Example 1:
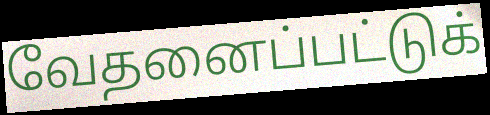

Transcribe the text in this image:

வேதனைப்பட்டுக்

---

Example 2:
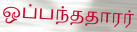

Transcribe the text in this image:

ஒப்பந்ததாரர்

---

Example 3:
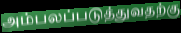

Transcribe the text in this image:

அம்பலப்படுத்துவதற்கு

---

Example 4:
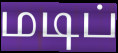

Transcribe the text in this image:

மடிப்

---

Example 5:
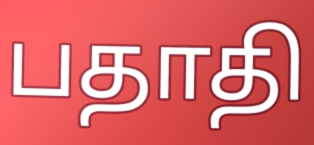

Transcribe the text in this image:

பதாதி